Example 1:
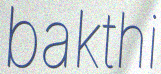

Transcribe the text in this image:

bakthi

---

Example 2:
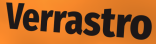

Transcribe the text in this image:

Verrastro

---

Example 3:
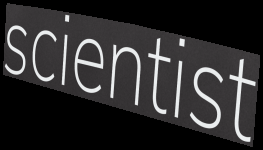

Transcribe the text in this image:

scientist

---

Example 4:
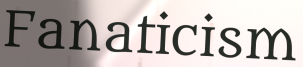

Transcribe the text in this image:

Fanaticism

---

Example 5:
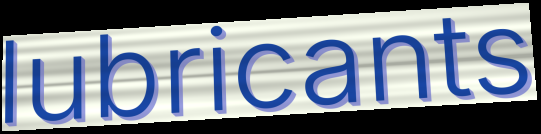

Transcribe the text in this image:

lubricants